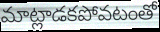
మాట్లాడకపోవటంతో